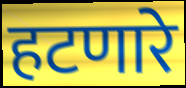
हटणारे